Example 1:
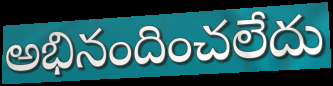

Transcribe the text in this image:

అభినందించలేదు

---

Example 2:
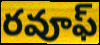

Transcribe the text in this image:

రవూఫ్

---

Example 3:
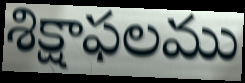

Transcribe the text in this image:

శిక్షాఫలము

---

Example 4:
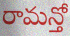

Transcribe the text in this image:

రామన్తో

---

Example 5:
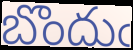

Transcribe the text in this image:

బొందుఁ